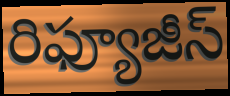
రిఫ్యూజీస్